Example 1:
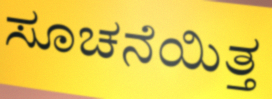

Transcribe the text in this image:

ಸೂಚನೆಯಿತ್ತ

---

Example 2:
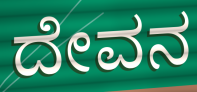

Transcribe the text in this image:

ದೇವನ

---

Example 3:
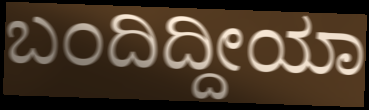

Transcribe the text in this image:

ಬಂದಿದ್ದೀಯಾ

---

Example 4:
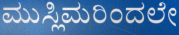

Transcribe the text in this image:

ಮುಸ್ಲಿಮರಿಂದಲೇ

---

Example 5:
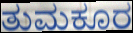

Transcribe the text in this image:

ತುಮಕೂರ